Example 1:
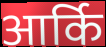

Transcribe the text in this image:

आर्कि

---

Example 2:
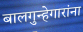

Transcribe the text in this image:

बालगुन्हेगारांना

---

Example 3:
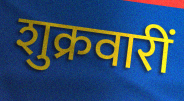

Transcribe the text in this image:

शुक्रवारीं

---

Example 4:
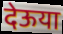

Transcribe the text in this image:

देऊया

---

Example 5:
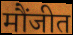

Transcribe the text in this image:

मौंजीत